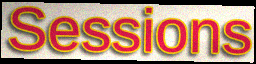
Sessions